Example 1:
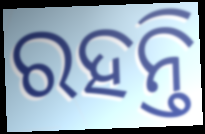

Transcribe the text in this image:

ରହନ୍ତି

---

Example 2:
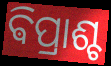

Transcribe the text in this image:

ଵିପ୍ରାଶ୍ଚ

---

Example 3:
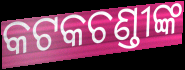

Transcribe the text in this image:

କଟକଚଣ୍ଡୀଙ୍କ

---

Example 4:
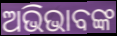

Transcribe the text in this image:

ଅଭିଭାବଙ୍କ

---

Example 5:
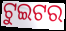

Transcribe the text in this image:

ଟୁଇଟର